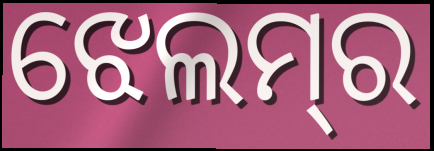
ଝେଲମ୍‌ର